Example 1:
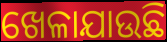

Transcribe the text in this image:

ଖେଳାଯାଉଛି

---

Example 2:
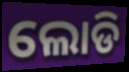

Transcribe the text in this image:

ଲୋଡି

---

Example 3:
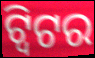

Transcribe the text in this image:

ଟ୍ୱିଟର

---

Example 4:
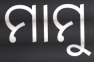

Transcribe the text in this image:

ମାମୁ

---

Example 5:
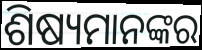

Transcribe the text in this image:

ଶିଷ୍ୟମାନଙ୍କର